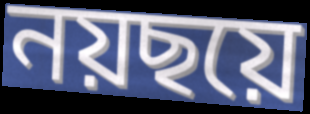
নয়ছয়ে